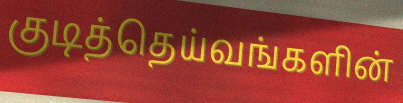
குடித்தெய்வங்களின்